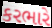
કરભારે